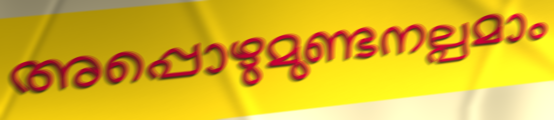
അപ്പൊഴുമുണ്ടനല്പമാം